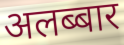
अलब्बार